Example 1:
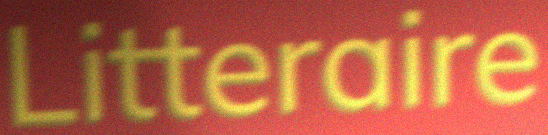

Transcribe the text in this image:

Litteraire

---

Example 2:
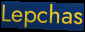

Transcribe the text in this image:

Lepchas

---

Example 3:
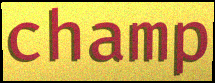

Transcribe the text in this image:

champ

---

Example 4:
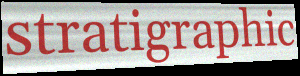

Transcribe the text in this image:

stratigraphic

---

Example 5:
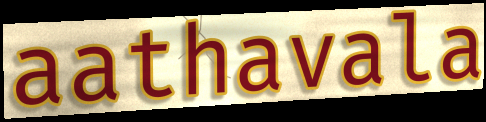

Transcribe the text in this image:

aathavala